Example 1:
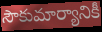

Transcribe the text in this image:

సౌకుమార్యానికీ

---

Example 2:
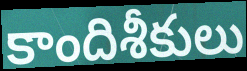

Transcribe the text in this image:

కాందిశీకులు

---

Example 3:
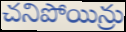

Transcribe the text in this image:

చనిపోయిన్రు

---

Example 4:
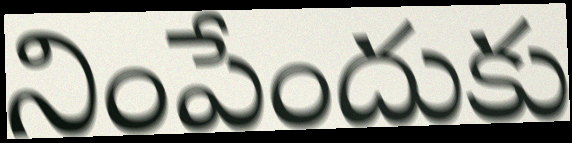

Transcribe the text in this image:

నింపేందుకు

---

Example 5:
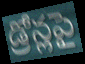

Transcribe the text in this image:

డ్రోన్లపై